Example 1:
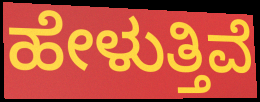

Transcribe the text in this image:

ಹೇಳುತ್ತಿವೆ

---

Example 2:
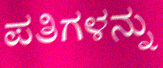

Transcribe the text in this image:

ಪತಿಗಳನ್ನು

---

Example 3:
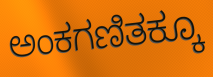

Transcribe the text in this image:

ಅಂಕಗಣಿತಕ್ಕೂ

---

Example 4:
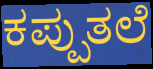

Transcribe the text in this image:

ಕಪ್ಪುತಲೆ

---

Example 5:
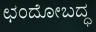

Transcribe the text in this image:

ಛಂದೋಬದ್ಧ